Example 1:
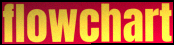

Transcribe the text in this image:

flowchart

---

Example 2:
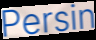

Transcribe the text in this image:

Persin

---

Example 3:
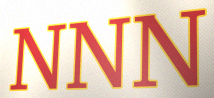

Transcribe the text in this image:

NNN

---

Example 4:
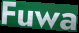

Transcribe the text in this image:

Fuwa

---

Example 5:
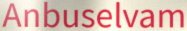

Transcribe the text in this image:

Anbuselvam